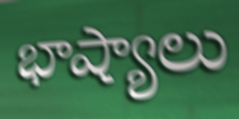
భాష్యాలు